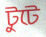
টুটে